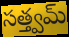
సత్త్వమ్